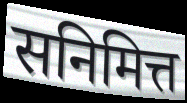
सनिमित्त